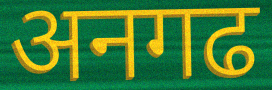
अनगढ